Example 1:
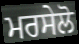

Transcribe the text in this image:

ਮਰਸੇਲੋ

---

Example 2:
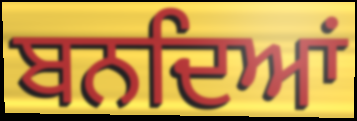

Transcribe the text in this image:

ਬਨਦਿਆਂ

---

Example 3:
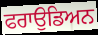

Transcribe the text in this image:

ਫਰਾਉਡਿਅਨ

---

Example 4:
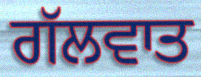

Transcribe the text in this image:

ਗੱਲਵਾਤ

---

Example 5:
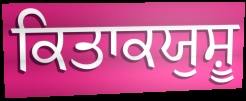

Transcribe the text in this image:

ਕਿਤਾਕਯੁਸ਼ੂ